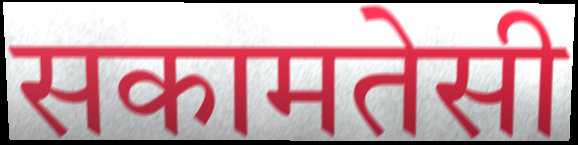
सकामतेसी